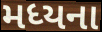
મધ્યના